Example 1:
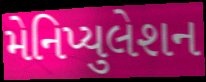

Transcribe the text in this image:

મેનિપ્યુલેશન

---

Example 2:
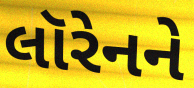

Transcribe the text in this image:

લૉરેનને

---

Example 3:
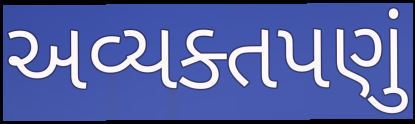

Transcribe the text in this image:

અવ્યક્તપણું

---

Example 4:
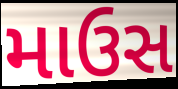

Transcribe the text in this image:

માઉસ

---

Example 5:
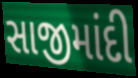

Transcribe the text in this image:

સાજીમાંદી